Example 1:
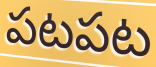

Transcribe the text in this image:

పటపట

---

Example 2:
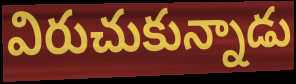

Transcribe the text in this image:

విరుచుకున్నాడు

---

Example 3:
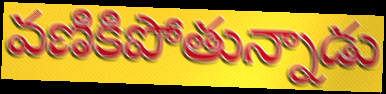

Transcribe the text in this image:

వణికిపోతున్నాడు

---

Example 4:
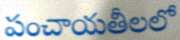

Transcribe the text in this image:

పంచాయతీలలో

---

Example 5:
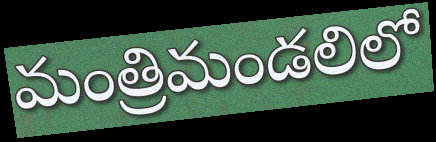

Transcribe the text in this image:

మంత్రిమండలిలో